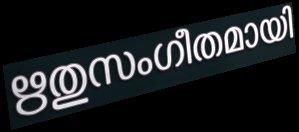
ഋതുസംഗീതമായി